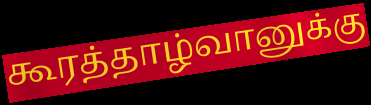
கூரத்தாழ்வானுக்கு